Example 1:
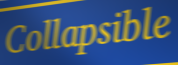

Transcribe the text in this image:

Collapsible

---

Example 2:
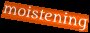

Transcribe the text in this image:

moistening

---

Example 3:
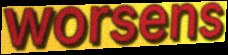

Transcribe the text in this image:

worsens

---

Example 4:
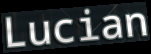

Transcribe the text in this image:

Lucian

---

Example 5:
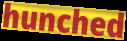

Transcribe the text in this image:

hunched